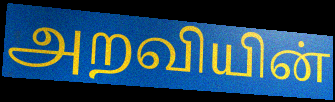
அறவியின்